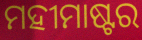
ମହୀମାଷ୍ଟର